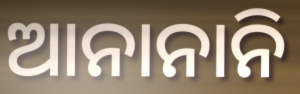
ଆନାନାନି